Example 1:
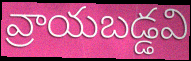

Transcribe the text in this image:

వ్రాయబడ్డవి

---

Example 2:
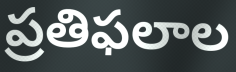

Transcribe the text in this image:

ప్రతిఫలాల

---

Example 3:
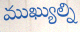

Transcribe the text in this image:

ముఖ్యుల్ని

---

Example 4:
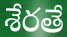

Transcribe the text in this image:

శేరతే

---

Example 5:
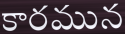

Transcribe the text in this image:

కారమున